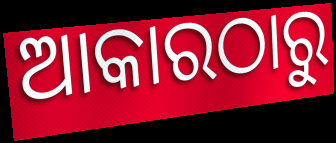
ଆକାରଠାରୁ